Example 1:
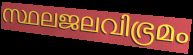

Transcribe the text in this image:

സ്ഥലജലവിഭ്രമം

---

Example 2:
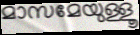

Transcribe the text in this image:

മാസമേയുള്ളൂ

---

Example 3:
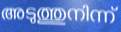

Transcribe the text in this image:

അടുത്തുനിന്ന്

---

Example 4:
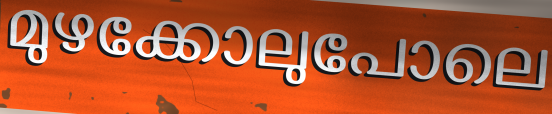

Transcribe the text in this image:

മുഴക്കോലുപോലെ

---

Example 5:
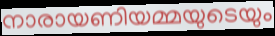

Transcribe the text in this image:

നാരായണിയമ്മയുടെയും